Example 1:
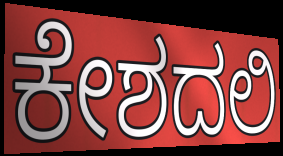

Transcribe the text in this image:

ಕೇಶದಲಿ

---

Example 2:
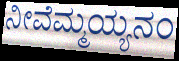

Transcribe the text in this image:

ನೀವೆಮ್ಮಯ್ಯನಂ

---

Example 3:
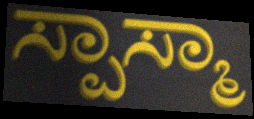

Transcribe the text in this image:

ಸ್ಪಾಸ್ಮಾ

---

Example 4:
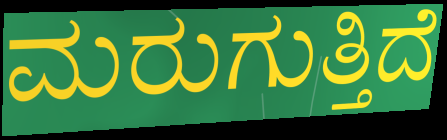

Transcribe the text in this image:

ಮರುಗುತ್ತಿದೆ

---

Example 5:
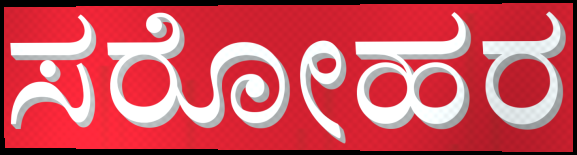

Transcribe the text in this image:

ಸರೋಹರ